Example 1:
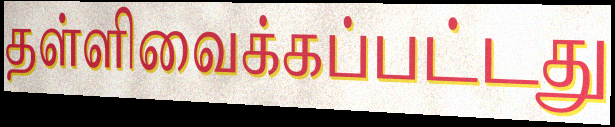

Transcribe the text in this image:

தள்ளிவைக்கப்பட்டது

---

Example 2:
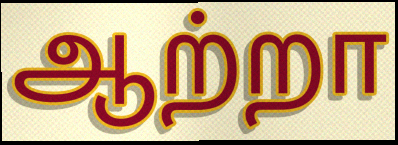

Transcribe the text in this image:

ஆற்றா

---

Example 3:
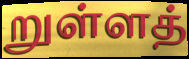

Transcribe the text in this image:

றுள்ளத்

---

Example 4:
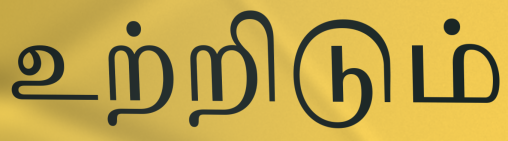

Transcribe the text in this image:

உற்றிடும்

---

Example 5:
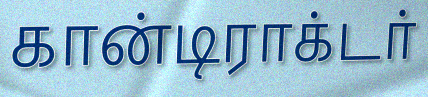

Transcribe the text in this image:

கான்டிராக்டர்